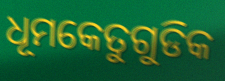
ଧୂମକେତୁଗୁଡିକ